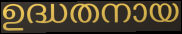
ഉദ്ധതനായ